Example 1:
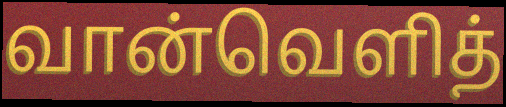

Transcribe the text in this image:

வான்வெளித்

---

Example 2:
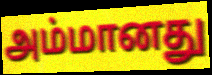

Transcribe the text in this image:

அம்மானது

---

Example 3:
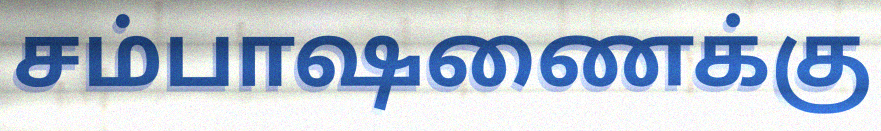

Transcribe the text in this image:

சம்பாஷணைக்கு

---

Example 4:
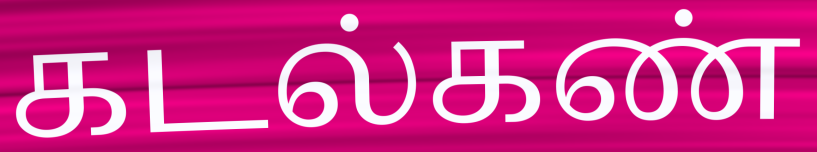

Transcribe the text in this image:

கடல்கண்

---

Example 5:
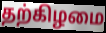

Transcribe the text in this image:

தற்கிழமை